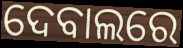
ଦେବାଲରେ